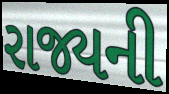
રાજ્યની